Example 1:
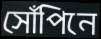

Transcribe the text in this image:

সোঁপিনে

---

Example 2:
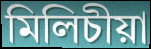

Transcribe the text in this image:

মিলিচীয়া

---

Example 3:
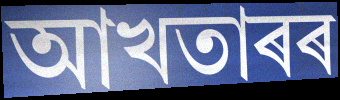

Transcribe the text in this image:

আখতাৰৰ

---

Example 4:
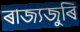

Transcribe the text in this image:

ৰাজ্যজুৰি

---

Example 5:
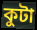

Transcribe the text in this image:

কুটা